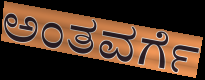
ಅಂತವರ್ಗೆ